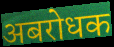
अबरोधक